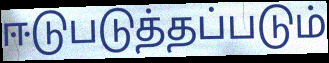
ஈடுபடுத்தப்படும்